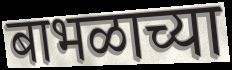
बाभळाच्या